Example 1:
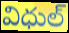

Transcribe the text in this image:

విధుల్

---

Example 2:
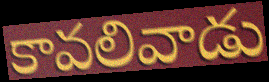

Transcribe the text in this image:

కావలివాడు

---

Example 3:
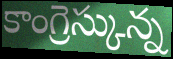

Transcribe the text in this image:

కాంగ్రెస్కున్న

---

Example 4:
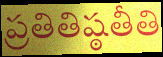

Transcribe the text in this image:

ప్రతితిష్ఠతీతి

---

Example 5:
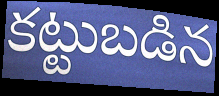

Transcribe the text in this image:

కట్టుబడిన